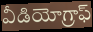
వీడియోగ్రాఫ్